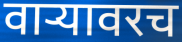
वाऱ्यावरच